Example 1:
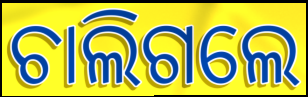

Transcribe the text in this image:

ଚାଲିଗଲେ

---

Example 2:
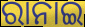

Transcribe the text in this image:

ରାନାଇ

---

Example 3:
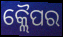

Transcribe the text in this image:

କ୍ଲୈପର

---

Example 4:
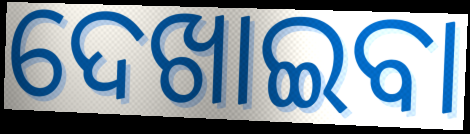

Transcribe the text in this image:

ଦେଖାଇବା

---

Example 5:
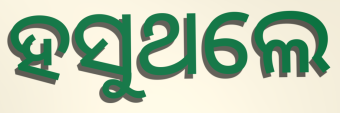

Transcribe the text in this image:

ହସୁଥଲେ